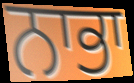
ਨਾਭਾ